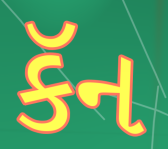
કૅન